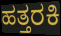
ಹತ್ತರಕಿ